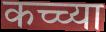
कच्च्या